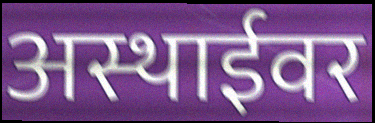
अस्थाईवर